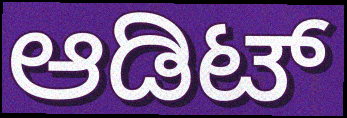
ಆಡಿಟ್